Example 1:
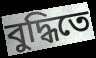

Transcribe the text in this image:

বুদ্ধিতে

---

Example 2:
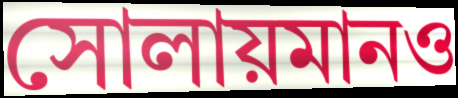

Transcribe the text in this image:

সোলায়মানও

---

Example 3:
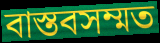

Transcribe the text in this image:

বাস্তবসম্মত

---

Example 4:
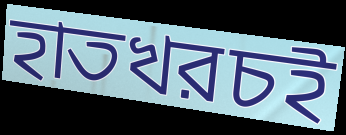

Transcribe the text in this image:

হাতখরচই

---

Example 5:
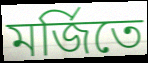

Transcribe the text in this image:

মর্জিতে